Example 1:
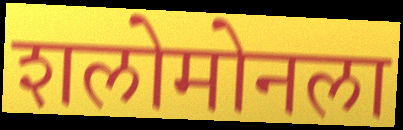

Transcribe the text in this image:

शलोमोनला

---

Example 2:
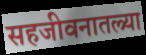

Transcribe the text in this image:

सहजीवनातल्या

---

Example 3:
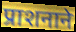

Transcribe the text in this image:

प्राशनाने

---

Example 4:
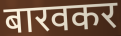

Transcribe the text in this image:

बारवकर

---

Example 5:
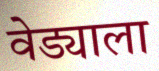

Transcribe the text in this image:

वेड्याला